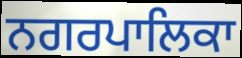
ਨਗਰਪਾਲਿਕਾ